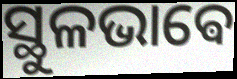
ସ୍ଥୁଳଭାଵେ